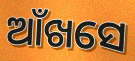
ଆଁଖସେ